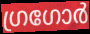
ഗ്രഗോർ